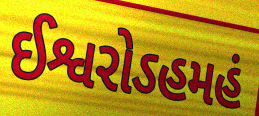
ઈશ્વરોઽહમહં